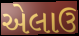
એલાઉ